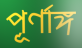
পূর্ণাঙ্গ